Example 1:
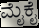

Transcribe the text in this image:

ಮೈಕೈ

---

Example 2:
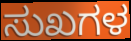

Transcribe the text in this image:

ಸುಖಗಳ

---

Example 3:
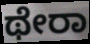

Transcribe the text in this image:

ಥೇರಾ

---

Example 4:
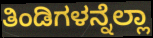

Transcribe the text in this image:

ತಿಂಡಿಗಳನ್ನೆಲ್ಲಾ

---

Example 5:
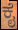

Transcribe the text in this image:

ಕೈ